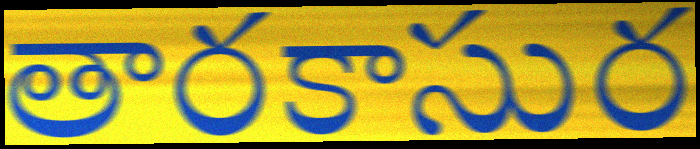
తారకాసుర